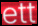
ett